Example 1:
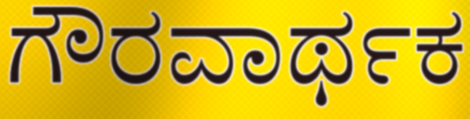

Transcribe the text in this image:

ಗೌರವಾರ್ಥಕ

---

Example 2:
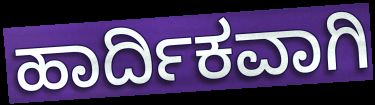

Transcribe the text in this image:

ಹಾರ್ದಿಕವಾಗಿ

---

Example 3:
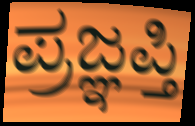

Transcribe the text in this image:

ಪ್ರಜ್ಞಪ್ತಿ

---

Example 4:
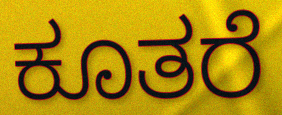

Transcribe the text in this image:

ಕೂತರೆ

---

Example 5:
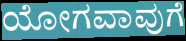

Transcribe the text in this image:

ಯೋಗವಾವುಗೆ